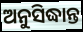
ଅନୁସିଦ୍ଧାନ୍ତ